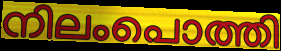
നിലംപൊത്തി